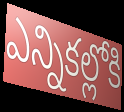
ఎన్నికల్లోకి